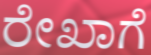
ರೇಖಾಗೆ